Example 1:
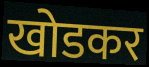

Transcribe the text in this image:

खोडकर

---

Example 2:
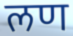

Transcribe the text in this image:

लण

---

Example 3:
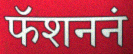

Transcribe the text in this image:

फॅशननं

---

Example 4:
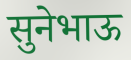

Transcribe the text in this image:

सुनेभाऊ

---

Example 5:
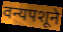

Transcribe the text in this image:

वन्यपशूने